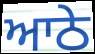
ਆਠੇ